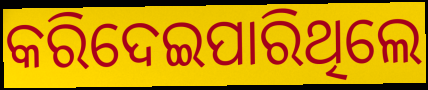
କରିଦେଇପାରିଥିଲେ